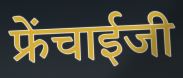
फ्रेंचाईजी